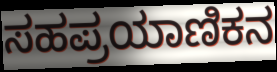
ಸಹಪ್ರಯಾಣಿಕನ